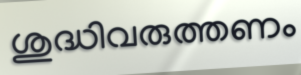
ശുദ്ധിവരുത്തണം